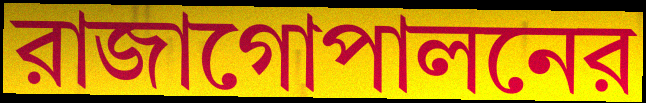
রাজাগোপালনের